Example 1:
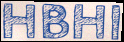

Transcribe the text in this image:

HBHI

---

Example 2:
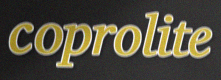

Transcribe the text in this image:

coprolite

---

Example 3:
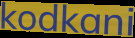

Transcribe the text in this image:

kodkani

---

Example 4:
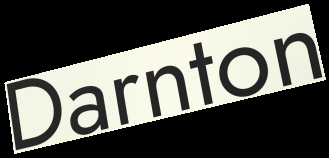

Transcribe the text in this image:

Darnton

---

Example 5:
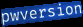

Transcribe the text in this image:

pwversion